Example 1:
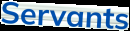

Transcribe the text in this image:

Servants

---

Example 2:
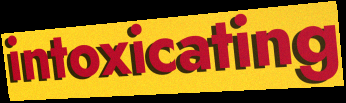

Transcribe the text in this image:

intoxicating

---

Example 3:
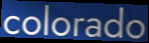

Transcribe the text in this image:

colorado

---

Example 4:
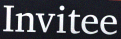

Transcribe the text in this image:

Invitee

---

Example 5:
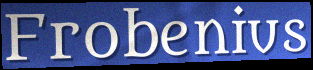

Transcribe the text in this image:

Frobenius